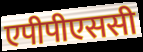
एपीपीएससी